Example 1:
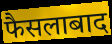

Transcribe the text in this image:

फैसलाबाद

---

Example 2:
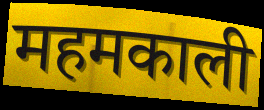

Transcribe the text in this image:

महमकाली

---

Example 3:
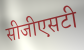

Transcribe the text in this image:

सीजीएसटी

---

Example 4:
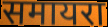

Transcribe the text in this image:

समायरा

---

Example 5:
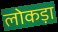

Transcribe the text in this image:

लोकड़ा